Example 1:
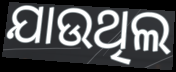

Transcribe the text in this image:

ଯାଉଥିଲ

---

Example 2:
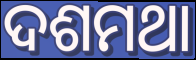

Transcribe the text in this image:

ଦଶମଥା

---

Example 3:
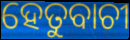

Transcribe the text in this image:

ହେତୁବାଚୀ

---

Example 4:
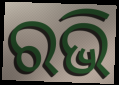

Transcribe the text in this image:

ରଭି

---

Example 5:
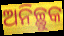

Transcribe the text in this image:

ଅନିଚ୍ଛୁକ